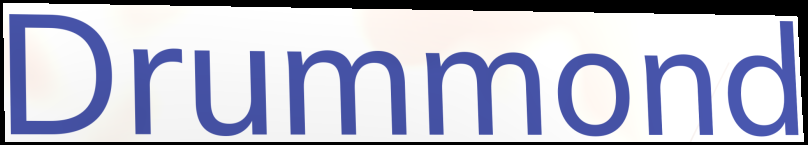
Drummond